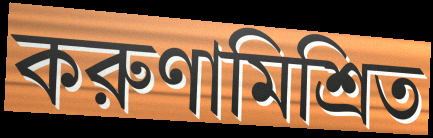
করুণামিশ্রিত